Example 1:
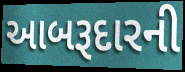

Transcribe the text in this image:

આબરૂદારની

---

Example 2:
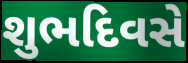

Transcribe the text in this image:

શુભદિવસે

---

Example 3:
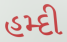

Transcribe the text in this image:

હમ્દી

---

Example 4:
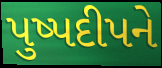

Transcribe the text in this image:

પુષ્પદીપને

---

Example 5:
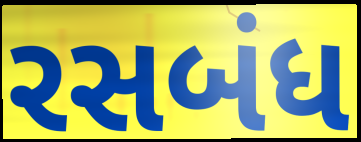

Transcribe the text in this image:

રસબંધ